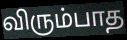
விரும்பாத